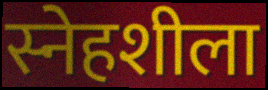
स्नेहशीला